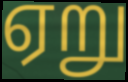
ஏறு